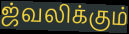
ஜ்வலிக்கும்